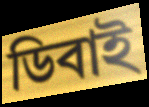
ডিবাই